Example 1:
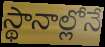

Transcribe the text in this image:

స్థానాల్లోనే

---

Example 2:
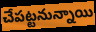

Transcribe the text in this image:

చేపట్టనున్నాయి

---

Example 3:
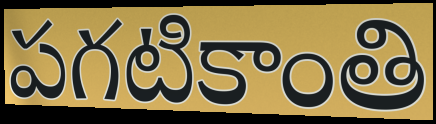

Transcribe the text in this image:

పగటికాంతి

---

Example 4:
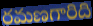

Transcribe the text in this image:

రమణగారిది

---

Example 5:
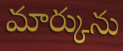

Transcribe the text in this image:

మార్కును